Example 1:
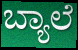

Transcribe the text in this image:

ಬ್ಯಾಲೆ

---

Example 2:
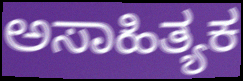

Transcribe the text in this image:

ಅಸಾಹಿತ್ಯಕ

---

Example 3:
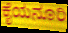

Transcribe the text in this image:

ಕೈಯನೂರಿ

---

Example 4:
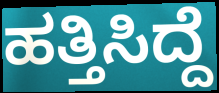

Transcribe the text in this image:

ಹತ್ತಿಸಿದ್ದೆ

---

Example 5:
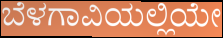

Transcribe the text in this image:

ಬೆಳಗಾವಿಯಲ್ಲಿಯೇ